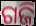
ଗଜି